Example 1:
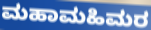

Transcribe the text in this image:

ಮಹಾಮಹಿಮರ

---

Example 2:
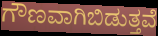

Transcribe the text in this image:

ಗೌಣವಾಗಿಬಿಡುತ್ತವೆ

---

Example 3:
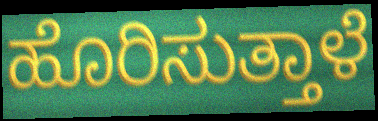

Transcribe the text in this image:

ಹೊರಿಸುತ್ತಾಳೆ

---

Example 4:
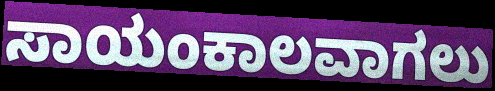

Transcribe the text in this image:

ಸಾಯಂಕಾಲವಾಗಲು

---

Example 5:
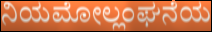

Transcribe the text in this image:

ನಿಯಮೋಲ್ಲಂಘನೆಯ